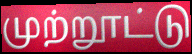
முற்றூட்டு